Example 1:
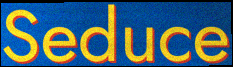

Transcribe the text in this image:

Seduce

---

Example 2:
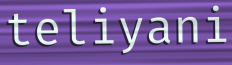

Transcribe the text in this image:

teliyani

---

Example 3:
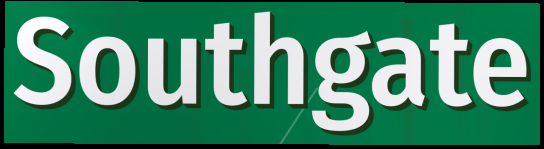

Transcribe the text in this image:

Southgate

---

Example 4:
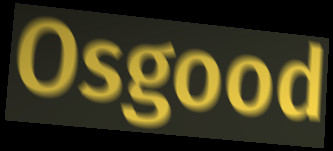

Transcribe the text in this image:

Osgood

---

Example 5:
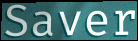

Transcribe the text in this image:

Saver